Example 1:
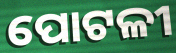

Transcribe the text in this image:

ପୋଟଳୀ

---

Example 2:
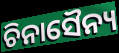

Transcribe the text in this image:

ଚିନାସୈନ୍ୟ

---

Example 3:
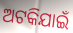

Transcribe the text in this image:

ଅଟକିଯାଇଁ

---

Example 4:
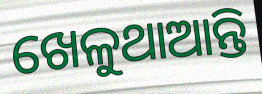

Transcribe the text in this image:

ଖେଳୁଥାଆନ୍ତି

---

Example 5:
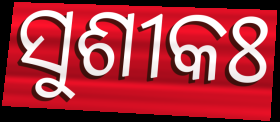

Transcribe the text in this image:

ସୁଶୀକଃ